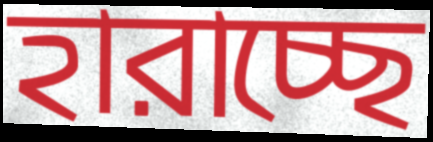
হারাচ্ছে